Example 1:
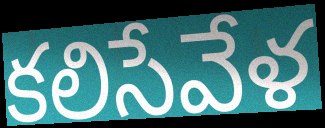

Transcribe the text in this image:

కలిసేవేళ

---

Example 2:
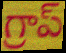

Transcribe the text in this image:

గ్రాప్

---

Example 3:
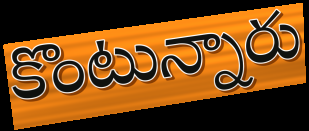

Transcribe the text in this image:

కొంటున్నారు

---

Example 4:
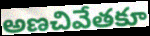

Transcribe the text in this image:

అణచివేతకూ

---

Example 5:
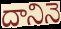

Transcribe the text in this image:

దానినె